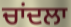
ਚਾਂਦਲਾ